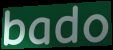
bado